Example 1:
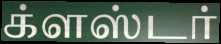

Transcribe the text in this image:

க்ளஸ்டர்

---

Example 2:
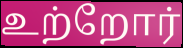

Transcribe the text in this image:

உற்றோர்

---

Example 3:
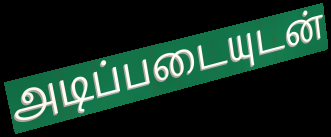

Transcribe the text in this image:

அடிப்படையுடன்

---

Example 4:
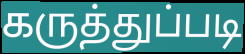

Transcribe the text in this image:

கருத்துப்படி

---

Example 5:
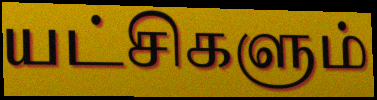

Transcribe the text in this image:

யட்சிகளும்